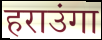
हराउंगा